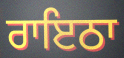
ਰਾਇਠਾ